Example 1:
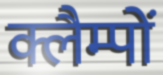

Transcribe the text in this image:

क्लैम्पों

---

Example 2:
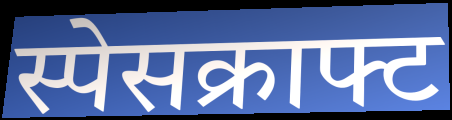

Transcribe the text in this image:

स्‍पेसक्राफ्ट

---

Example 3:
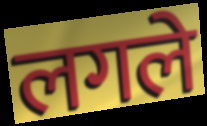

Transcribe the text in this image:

लगले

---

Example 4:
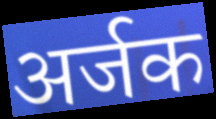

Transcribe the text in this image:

अर्जक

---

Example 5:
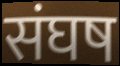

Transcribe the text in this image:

संघष